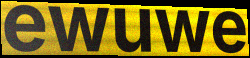
ewuwe